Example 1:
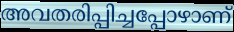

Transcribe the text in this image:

അവതരിപ്പിച്ചപ്പോഴാണ്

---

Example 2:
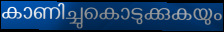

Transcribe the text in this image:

കാണിച്ചുകൊടുക്കുകയും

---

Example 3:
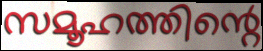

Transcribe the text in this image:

സമൂഹത്തിന്റെ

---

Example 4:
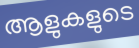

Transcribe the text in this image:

ആളുകളുടെ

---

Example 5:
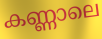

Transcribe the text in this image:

കണ്ണാലെ